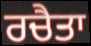
ਰਚੈਤਾ